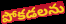
పోకడలను